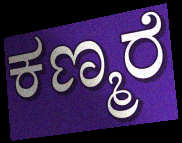
ಕಣ್ಮರೆ